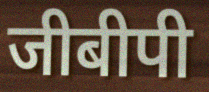
जीबीपी